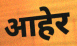
आहेर